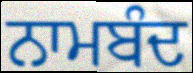
ਨਾਮਬੰਦ